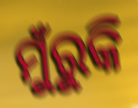
ମୁଁରୁକି